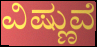
ವಿಷ್ಣುವೆ